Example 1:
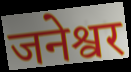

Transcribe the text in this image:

जनेश्वर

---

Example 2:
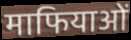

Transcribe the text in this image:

माफियाओं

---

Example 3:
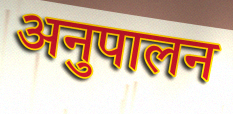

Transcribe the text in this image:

अनुपालन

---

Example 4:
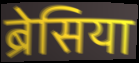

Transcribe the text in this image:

ब्रेसिया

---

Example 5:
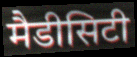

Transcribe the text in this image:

मैडीसिटी